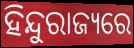
ହିନ୍ଦୁରାଜ୍ୟରେ